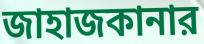
জাহাজকানার